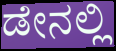
ಡೇನಲ್ಲಿ